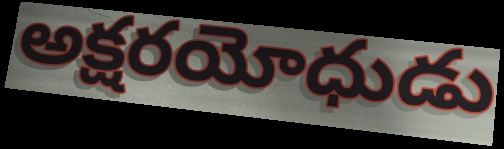
అక్షరయోధుడు